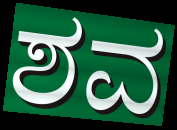
ಶವ